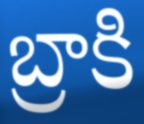
బ్రాకి